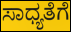
ಸಾಧ್ಯತೆಗೆ